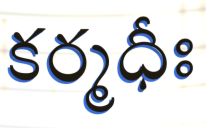
కర్మధీః